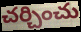
చర్చించు